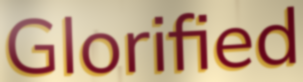
Glorified